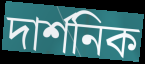
দার্শনিক